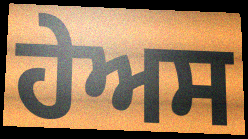
ਹੇਅਸ